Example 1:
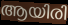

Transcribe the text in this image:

ആയിരി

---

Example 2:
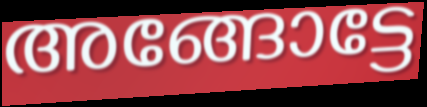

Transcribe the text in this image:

അങ്ങോട്ടേ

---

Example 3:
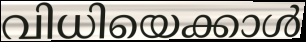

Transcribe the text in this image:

വിധിയെക്കാൾ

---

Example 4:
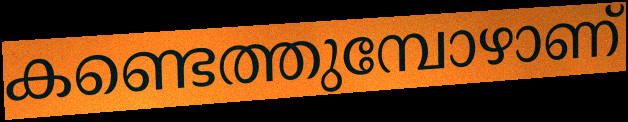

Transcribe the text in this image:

കണ്ടെത്തുമ്പോഴാണ്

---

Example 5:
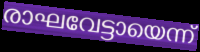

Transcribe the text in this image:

രാഘവേട്ടായെന്ന്